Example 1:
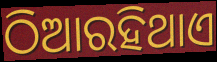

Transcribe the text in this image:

ଠିଆରହିଥାଏ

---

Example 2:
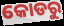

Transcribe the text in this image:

କୋଡରୁ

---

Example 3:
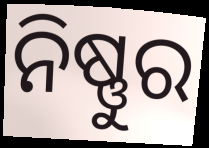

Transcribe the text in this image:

ନିଷ୍ଣୁର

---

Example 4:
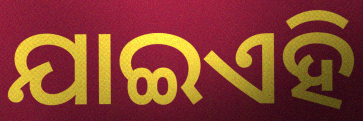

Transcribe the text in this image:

ଯାଇଏହି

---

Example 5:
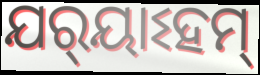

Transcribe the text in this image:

ଯର୍‌ୟାଽହମ୍